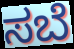
ಸಬೆ